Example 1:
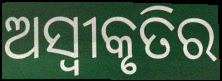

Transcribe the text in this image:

ଅସ୍ୱୀକୃତିର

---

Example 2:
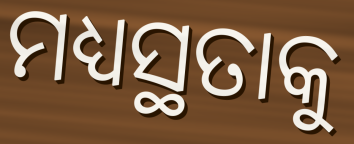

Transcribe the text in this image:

ମଧ୍ୟସ୍ଥତାକୁ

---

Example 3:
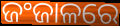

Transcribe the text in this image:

ଜଂଜାଳରେ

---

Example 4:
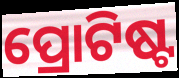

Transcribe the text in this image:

ପ୍ରୋଟିଷ୍ଟ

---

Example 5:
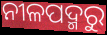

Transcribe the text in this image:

ନୀଳପଦ୍ମରୁ